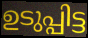
ഉടുപ്പിട്ട